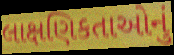
લાક્ષણિકતાઓનું